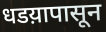
धडय़ापासून